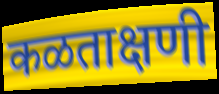
कळताक्षणी